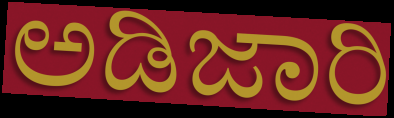
ಅಡಿಜಾರಿ